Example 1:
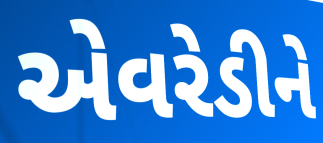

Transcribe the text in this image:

એવરેડીને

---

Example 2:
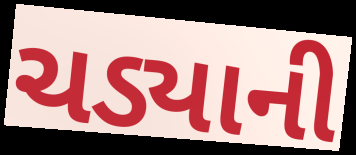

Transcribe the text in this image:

ચડ્યાની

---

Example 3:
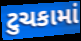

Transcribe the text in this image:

ટુચકામાં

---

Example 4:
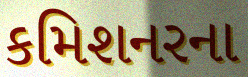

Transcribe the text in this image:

કમિશનરના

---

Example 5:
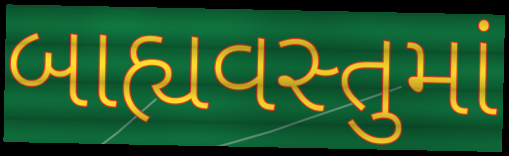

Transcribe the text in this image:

બાહ્યવસ્તુમાં